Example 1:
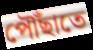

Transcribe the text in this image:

পৌঁছাতে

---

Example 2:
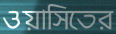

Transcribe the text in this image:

ওয়াসিতের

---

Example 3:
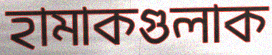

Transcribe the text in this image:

হামাকগুলাক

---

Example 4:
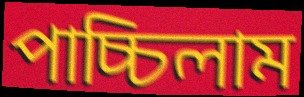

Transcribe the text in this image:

পাচ্চিলাম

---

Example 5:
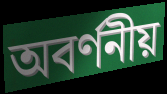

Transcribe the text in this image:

অবর্ণনীয়